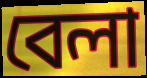
বেলা